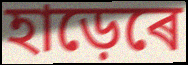
হাড়েৰে